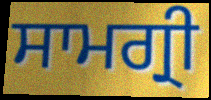
ਸਾਮਗ੍ਰੀ